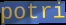
potri